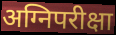
अग्निपरीक्षा